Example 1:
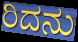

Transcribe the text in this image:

ರಿದನು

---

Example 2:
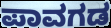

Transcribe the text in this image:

ಪಾವಗಡ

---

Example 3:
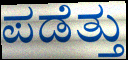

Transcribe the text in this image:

ಪಡೆತ್ತು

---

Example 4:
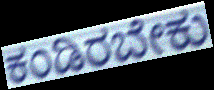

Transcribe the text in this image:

ಕಂಡಿರಬೇಕು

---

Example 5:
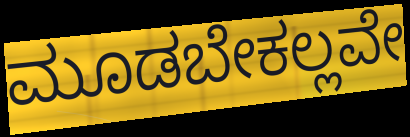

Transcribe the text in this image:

ಮೂಡಬೇಕಲ್ಲವೇ